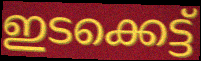
ഇടക്കെട്ട്